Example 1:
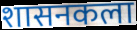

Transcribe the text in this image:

शासनकला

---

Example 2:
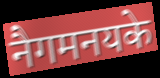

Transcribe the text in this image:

नैगमनयके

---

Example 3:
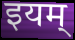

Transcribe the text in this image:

इयम्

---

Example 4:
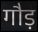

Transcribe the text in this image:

गौड़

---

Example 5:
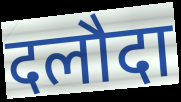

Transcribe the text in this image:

दलौदा